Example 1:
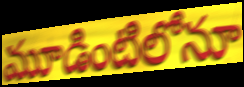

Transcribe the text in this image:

మూడింటిలోనూ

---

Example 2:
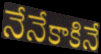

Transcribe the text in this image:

నేనేకాకినే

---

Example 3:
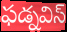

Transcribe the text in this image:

ఫడ్నవిస్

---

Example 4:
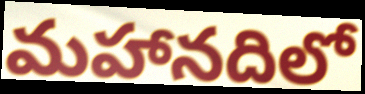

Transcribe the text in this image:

మహానదిలో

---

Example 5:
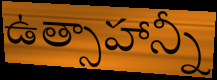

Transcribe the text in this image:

ఉత్సాహాన్నీ